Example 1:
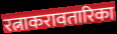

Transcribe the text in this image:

रत्नाकरावतारिका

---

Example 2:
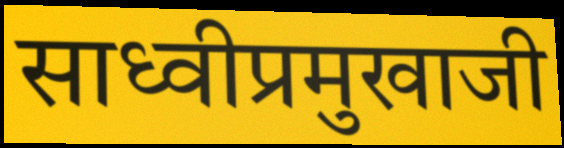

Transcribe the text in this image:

साध्वीप्रमुखाजी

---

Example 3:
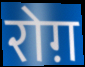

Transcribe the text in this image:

रोग़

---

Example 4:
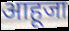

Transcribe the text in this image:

आहूजा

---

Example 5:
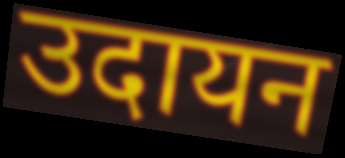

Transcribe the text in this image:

उदायन